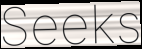
Seeks